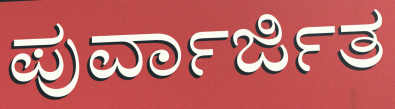
ಪುರ್ವಾರ್ಜಿತ